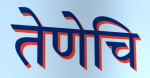
तेणेचि